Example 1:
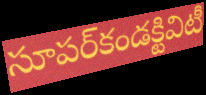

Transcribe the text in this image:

సూపర్‌కండక్టివిటీ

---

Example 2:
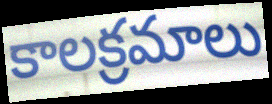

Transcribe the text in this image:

కాలక్రమాలు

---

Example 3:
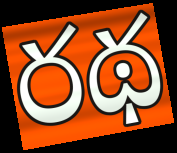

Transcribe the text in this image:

రథ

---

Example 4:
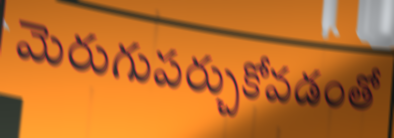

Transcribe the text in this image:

మెరుగుపర్చుకోవడంతో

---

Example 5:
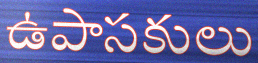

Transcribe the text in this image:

ఉపాసకులు